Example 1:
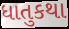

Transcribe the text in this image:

ધાતુકથા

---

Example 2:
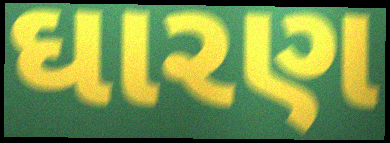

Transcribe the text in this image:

ઘારણ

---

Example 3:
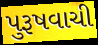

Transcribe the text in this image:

પુરૂષવાચી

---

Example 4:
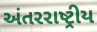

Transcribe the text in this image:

અંતરરાષ્ટ્રીય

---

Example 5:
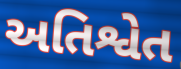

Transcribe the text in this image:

અતિશ્વેત